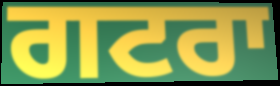
ਗਟਰਾ